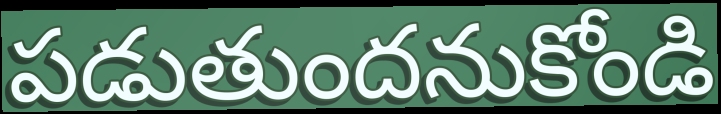
పడుతుందనుకోండి